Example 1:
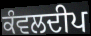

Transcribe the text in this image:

ਕੰਵਲਦੀਪ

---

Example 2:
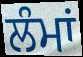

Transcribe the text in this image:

ਲੰਮਾਂ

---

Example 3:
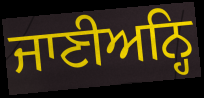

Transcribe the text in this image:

ਜਾਣੀਅਨ੍ਹਿ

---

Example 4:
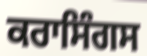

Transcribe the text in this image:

ਕਰਾਸਿੰਗਸ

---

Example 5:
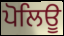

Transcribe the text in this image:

ਪੋਲਿਊ